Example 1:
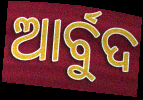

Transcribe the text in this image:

ଆର୍ବୁଦ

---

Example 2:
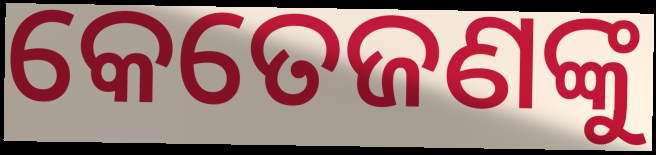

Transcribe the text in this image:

କେତେଜଣଙ୍କୁ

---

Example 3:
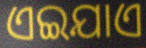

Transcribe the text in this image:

ଏଇଯାଏ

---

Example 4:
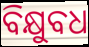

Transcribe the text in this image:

ବିକ୍ଷୁବଧ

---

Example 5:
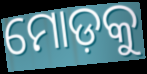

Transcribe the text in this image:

ମୋଡ଼କୁ